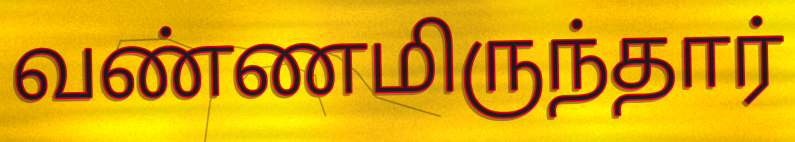
வண்ணமிருந்தார்